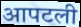
आपटली